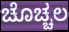
ಚೊಚ್ಚಲ